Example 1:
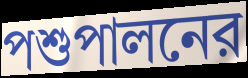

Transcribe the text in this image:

পশুপালনের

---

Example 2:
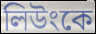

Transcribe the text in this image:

লিউংকে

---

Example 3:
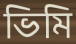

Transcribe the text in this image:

ভিমি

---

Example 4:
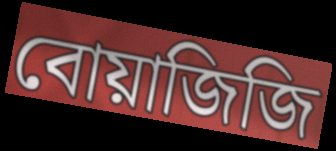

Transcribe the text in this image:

বোয়াজিজি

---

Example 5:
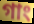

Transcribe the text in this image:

গাং